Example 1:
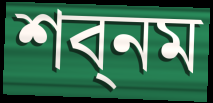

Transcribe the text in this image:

শব্নম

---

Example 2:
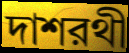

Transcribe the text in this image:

দাশরথী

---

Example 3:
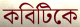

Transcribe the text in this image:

কবিটিকে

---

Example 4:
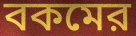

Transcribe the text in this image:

বকমের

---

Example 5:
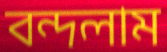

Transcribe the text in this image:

বন্দলাম